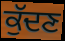
ਕੁੱਦਣ